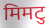
मिमटु